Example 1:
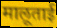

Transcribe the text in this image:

मालूताई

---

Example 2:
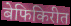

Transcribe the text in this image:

बेफिकिरीत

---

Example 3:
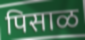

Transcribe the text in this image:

पिसाळ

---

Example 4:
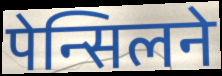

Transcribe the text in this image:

पेन्सिलने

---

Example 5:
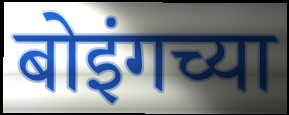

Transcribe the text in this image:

बोइंगच्या